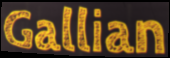
Gallian